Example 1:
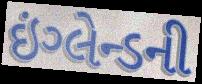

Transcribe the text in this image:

ઇંગ્લેન્ડની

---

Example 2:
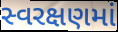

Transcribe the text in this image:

સ્વરક્ષણમાં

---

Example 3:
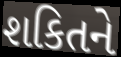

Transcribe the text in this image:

શકિતને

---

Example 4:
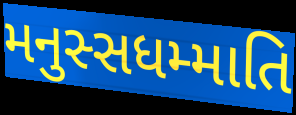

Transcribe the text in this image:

મનુસ્સધમ્માતિ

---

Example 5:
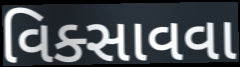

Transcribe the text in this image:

વિક્સાવવા